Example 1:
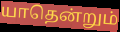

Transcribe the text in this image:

யாதென்றும்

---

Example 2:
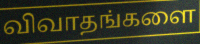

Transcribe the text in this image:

விவாதங்களை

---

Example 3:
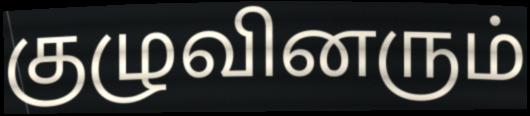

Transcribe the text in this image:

குழுவினரும்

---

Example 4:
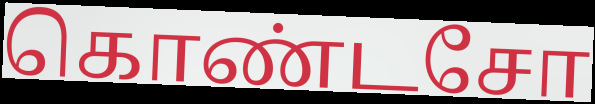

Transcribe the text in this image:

கொண்டசோ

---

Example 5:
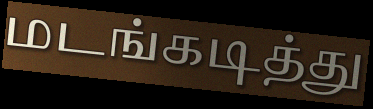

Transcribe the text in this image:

மடங்கடித்து